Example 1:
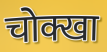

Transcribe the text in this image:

चोक्खा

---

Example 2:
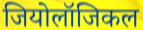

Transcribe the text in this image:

जियोलॉजिकल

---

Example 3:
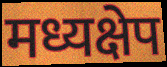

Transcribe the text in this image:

मध्यक्षेप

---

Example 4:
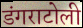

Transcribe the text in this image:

डंगराटोली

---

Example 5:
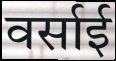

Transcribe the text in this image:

वर्साई